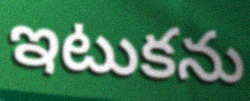
ఇటుకను